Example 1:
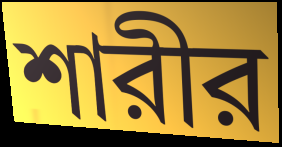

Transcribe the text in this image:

শারীর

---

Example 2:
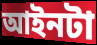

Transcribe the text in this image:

আইনটা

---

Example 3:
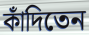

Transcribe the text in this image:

কাঁদিতেন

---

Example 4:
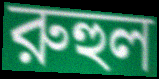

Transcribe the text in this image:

রুহুল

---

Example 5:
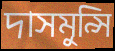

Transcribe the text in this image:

দাসমুন্সি